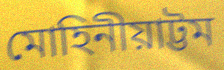
মোহিনীয়াট্টম